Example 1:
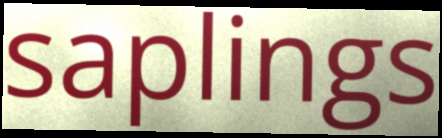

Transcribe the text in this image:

saplings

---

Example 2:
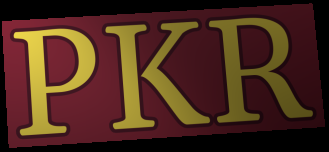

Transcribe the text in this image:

PKR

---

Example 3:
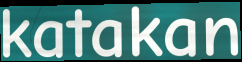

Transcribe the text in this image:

katakan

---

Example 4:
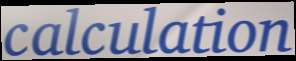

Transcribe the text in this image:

calculation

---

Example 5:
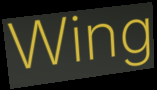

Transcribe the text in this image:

Wing